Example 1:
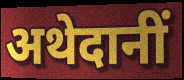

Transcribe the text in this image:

अथेदानीं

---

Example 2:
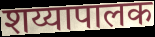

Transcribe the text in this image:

शय्यापालक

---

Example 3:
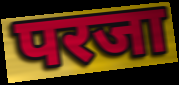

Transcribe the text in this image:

परजा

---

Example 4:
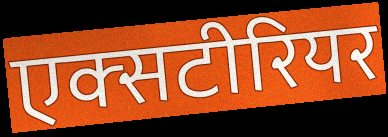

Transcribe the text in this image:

एक्‍सटीरियर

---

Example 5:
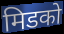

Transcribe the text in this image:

मिडको